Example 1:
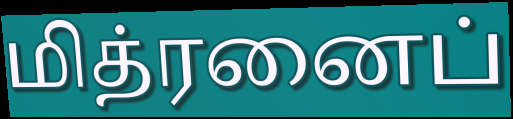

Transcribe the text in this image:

மித்ரனைப்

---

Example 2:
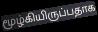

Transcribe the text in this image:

மூழ்கியிருப்பதாக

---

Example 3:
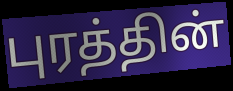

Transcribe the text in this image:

புரத்தின்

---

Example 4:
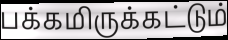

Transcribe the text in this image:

பக்கமிருக்கட்டும்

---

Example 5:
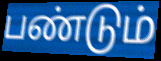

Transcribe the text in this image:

பண்டும்